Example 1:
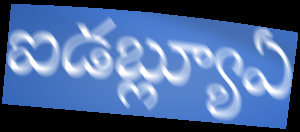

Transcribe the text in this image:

ఐడబ్ల్యూఏ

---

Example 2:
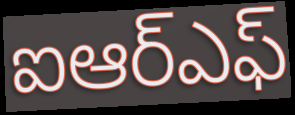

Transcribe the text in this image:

ఐఆర్ఎఫ్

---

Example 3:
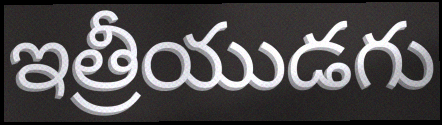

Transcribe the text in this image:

ఇత్రీయుడగు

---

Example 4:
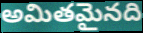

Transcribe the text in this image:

అమితమైనది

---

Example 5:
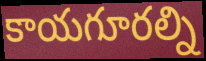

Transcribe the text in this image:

కాయగూరల్ని